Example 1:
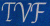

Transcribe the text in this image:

TVF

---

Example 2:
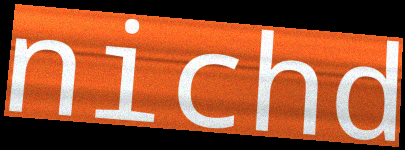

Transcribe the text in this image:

nichd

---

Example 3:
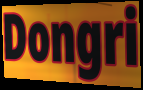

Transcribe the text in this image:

Dongri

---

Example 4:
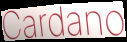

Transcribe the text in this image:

Cardano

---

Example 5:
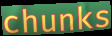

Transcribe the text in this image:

chunks